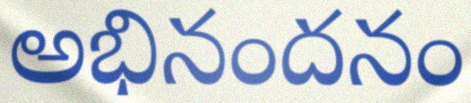
అభినందనం